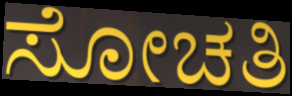
ಸೋಚತಿ